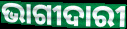
ଭାଗୀଦାରୀ